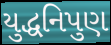
યુદ્ધનિપુણ